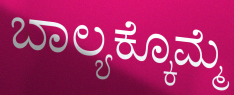
ಬಾಲ್ಯಕ್ಕೊಮ್ಮೆ